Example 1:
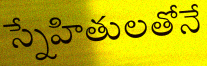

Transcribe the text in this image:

స్నేహితులతోనే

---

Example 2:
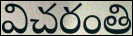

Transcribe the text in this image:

విచరంతి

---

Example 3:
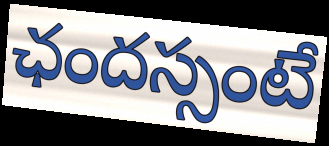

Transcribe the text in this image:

ఛందస్సంటే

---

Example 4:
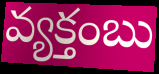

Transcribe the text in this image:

వ్యక్తంబు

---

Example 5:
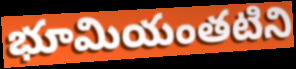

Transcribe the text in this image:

భూమియంతటిని